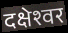
दक्षेश्वर